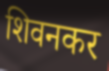
शिवनकर